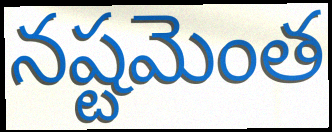
నష్టమెంత